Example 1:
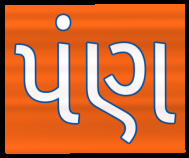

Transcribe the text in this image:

પંણ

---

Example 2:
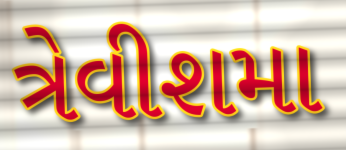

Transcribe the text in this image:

ત્રેવીશમા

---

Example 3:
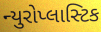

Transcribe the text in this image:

ન્યુરોપ્લાસ્ટિક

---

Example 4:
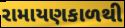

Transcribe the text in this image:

રામાયણકાળથી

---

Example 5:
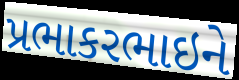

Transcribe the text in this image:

પ્રભાકરભાઇને